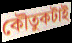
কৌতুকটাই